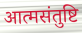
आत्मसंतुष्टि